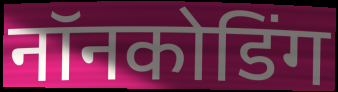
नॉनकोडिंग